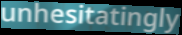
unhesitatingly